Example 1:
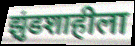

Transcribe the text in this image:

झुंडशाहीला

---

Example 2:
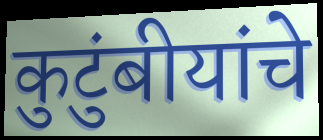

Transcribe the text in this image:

कुटुंबीयांचे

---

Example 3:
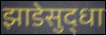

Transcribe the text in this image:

झाडेसुद्धा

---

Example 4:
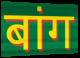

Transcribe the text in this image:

बांग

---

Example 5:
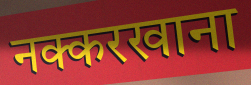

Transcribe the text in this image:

नक्करखाना